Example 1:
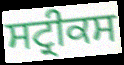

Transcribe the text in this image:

ਸਟ੍ਰੀਕਸ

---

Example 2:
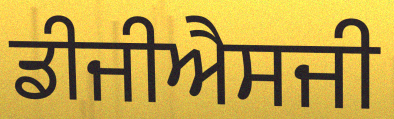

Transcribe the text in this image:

ਡੀਜੀਐਸਜੀ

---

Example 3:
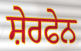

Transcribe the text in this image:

ਸ਼ੇਰਫੇਨ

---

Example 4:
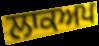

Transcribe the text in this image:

ਲਾਕਅਪ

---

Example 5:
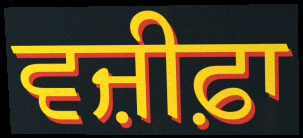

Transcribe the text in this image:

ਵਜ਼ੀਫ਼ਾ